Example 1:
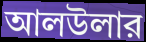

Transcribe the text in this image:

আলউলার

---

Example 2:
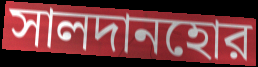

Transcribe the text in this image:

সালদানহোর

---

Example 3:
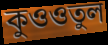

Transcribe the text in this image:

কুওওতুল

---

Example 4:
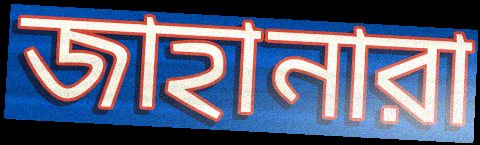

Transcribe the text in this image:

জাহানারা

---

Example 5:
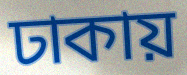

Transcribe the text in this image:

ঢাকায়